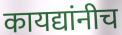
कायद्यांनीच